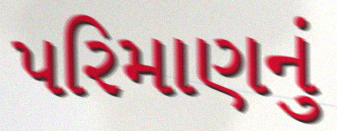
પરિમાણનું